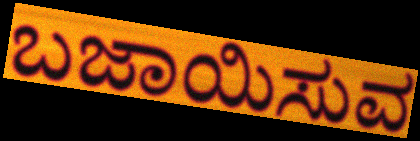
ಬಜಾಯಿಸುವ